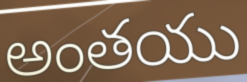
అంతయు